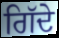
ਗਿੱਦੇ